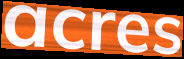
acres